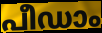
പീഡാം